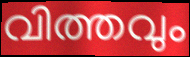
വിത്തവും